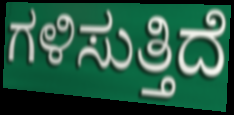
ಗಳಿಸುತ್ತಿದೆ